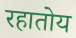
रहातोय